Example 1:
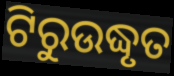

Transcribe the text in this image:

ଟିରୁଉଦ୍ଧୃତ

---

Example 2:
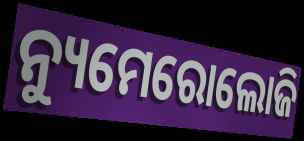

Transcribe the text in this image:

ନ୍ୟୁମେରୋଲୋଜି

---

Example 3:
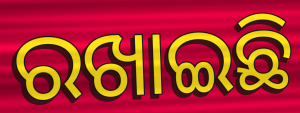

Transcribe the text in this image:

ରଖାଇଛି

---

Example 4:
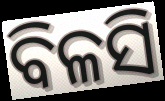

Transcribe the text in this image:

ବିଳସି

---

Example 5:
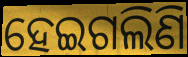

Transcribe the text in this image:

ହେଇଗଲିଣି